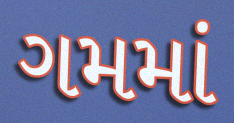
ગમમાં